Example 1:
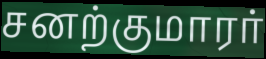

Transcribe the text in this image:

சனற்குமாரர்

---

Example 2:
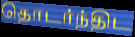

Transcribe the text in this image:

தொடர்ந்திட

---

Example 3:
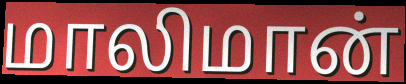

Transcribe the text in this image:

மாலிமான்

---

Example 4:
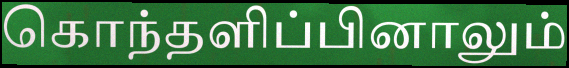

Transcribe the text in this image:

கொந்தளிப்பினாலும்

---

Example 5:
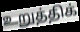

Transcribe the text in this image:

உறுத்திக்